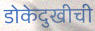
डोकेदुखीची